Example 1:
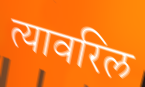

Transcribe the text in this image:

त्यावरिल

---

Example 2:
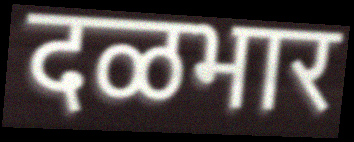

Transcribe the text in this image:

दळभार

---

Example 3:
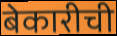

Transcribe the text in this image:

बेकारीची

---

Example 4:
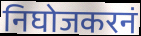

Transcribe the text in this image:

निघोजकरनं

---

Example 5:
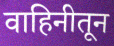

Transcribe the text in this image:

वाहिनीतून